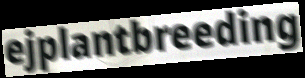
ejplantbreeding